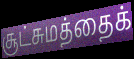
சூட்சுமத்தைக்